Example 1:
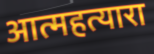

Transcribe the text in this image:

आत्महत्यारा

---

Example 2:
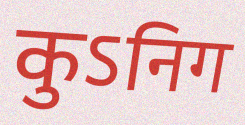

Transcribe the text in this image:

कुऽनिग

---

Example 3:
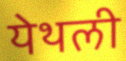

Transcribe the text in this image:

येथली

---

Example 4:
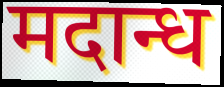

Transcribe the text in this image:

मदान्ध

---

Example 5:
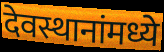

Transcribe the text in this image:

देवस्थानांमध्ये